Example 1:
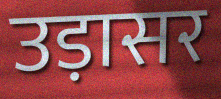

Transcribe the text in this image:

उड़ासर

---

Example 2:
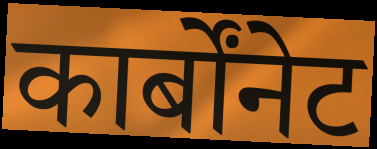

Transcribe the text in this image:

कार्बोंनेट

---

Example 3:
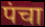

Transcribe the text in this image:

पंचा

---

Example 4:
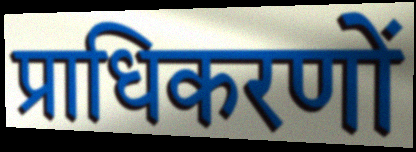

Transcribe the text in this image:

प्राधिकरणों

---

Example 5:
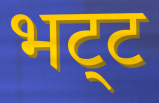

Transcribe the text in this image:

भट्‌ट